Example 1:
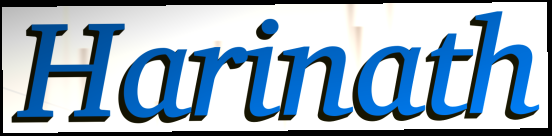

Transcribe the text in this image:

Harinath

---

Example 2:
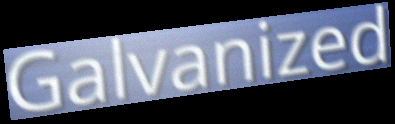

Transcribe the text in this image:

Galvanized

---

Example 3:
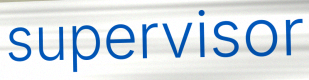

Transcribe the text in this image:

supervisor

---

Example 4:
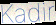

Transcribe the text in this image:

Kadir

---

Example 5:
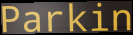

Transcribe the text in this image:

Parkin